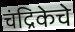
चंद्रिकेचे